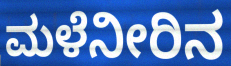
ಮಳೆನೀರಿನ